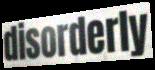
disorderly